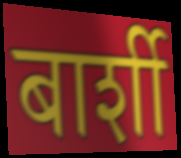
बार्शी